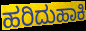
ಹರಿದುಹಾಕಿ